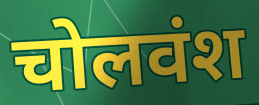
चोलवंश